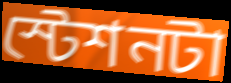
স্টেশনটা